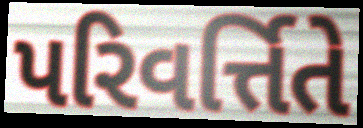
પરિવર્ત્તિતે